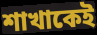
শাখাকেই